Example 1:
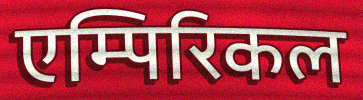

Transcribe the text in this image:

एम्पिरिकल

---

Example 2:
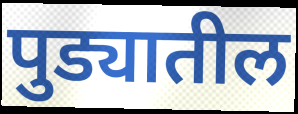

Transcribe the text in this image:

पुड्यातील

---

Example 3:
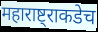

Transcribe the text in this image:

महाराष्ट्राकडेच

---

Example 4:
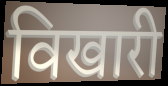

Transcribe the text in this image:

विखारी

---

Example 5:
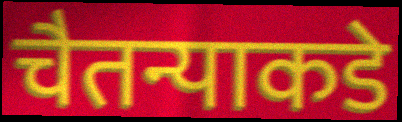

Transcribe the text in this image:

चैतन्याकडे